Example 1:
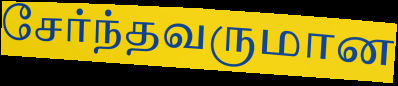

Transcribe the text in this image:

சேர்ந்தவருமான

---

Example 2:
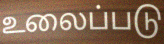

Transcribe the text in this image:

உலைப்படு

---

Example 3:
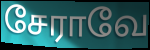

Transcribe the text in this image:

சேராவே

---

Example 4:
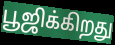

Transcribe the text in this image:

பூஜிக்கிறது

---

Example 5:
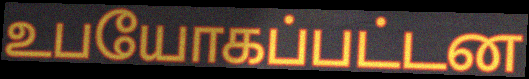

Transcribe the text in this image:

உபயோகப்பட்டன